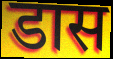
डास